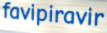
favipiravir